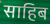
साहिब